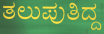
ತಲುಪುತಿದ್ದ